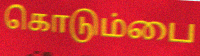
கொடும்பை